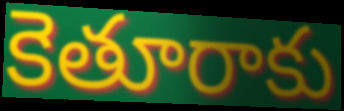
కెతూరాకు